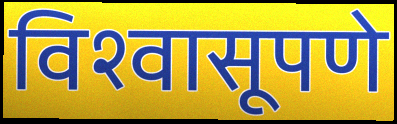
विश्वासूपणे